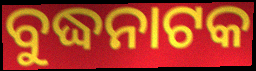
ବୁଦ୍ଧନାଟକ